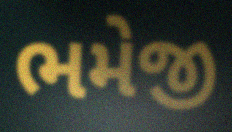
ભમેજી